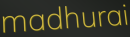
madhurai